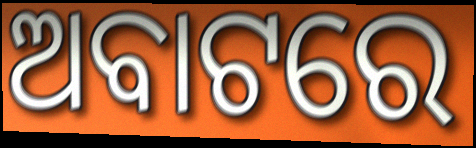
ଅବାଟରେ